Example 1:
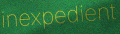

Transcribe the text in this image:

inexpedient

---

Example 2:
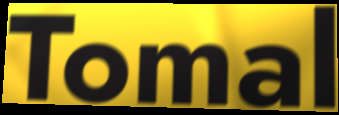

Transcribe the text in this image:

Tomal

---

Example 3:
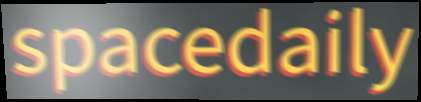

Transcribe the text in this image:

spacedaily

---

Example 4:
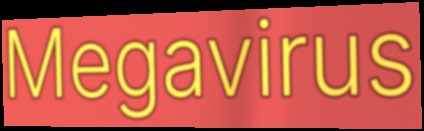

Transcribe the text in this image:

Megavirus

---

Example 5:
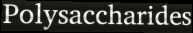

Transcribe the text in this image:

Polysaccharides